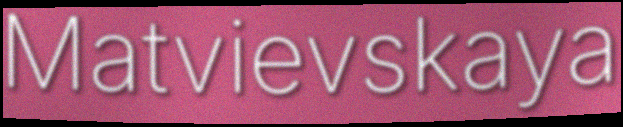
Matvievskaya